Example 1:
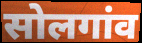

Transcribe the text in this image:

सोलगांव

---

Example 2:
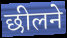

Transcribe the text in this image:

छीलने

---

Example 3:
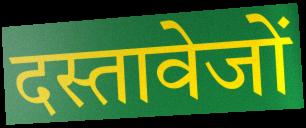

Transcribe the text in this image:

दस्तावेजों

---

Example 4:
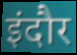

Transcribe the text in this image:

इंदौर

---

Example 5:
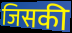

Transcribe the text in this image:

जिसकी